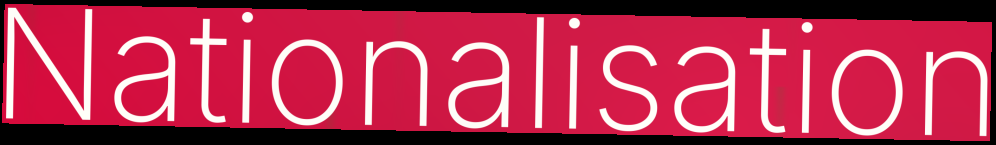
Nationalisation